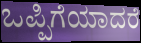
ಒಪ್ಪಿಗೆಯಾದರೆ